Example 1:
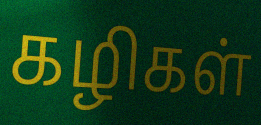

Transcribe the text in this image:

கழிகள்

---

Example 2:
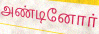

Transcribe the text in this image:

அண்டினோர்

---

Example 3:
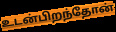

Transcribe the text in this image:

உடன்பிறந்தோன்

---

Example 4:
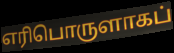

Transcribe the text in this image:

எரிபொருளாகப்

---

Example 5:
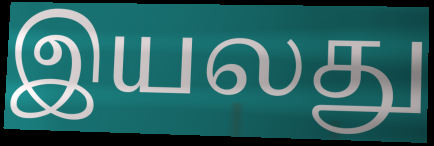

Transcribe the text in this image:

இயலது